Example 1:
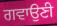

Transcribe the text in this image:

ਗਵਾਉਣੀ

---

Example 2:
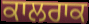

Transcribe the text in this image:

ਕਾਲਰਾਕ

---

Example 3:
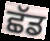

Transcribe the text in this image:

ਛੱਡ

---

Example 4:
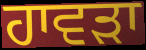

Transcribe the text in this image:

ਹਾਵਡ਼ਾ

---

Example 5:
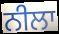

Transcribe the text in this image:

ਨੀਲਾ